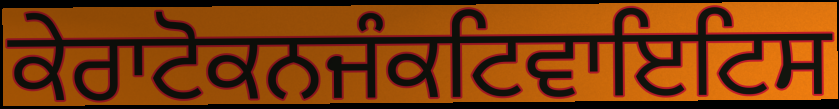
ਕੇਰਾਟੋਕਨਜੰਕਟਿਵਾਇਟਿਸ